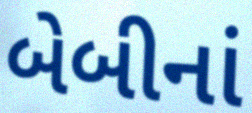
બેબીનાં